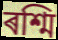
ৰশ্মি